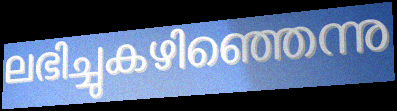
ലഭിച്ചുകഴിഞ്ഞെന്നു